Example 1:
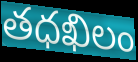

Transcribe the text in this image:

తధఖిలం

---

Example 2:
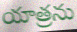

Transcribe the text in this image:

యాత్రను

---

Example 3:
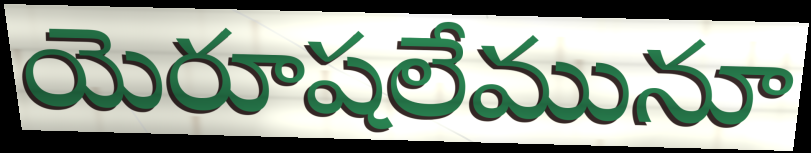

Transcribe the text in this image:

యెరూషలేమునూ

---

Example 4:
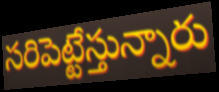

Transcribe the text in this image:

సరిపెట్టేస్తున్నారు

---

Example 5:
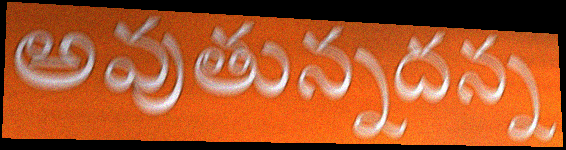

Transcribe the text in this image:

అవుతున్నదన్న